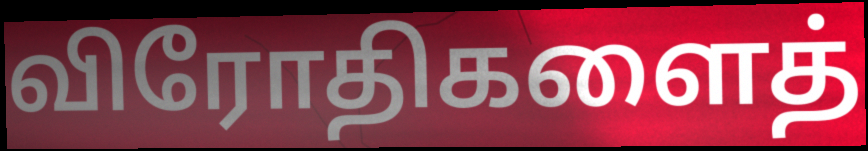
விரோதிகளைத்